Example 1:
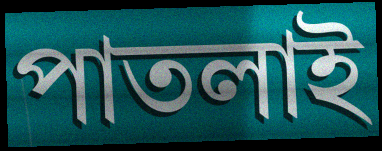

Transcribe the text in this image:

পাতলাই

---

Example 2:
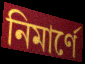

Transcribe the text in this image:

নিমার্ণে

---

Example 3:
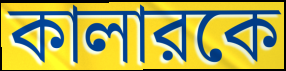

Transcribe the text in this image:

কালারকে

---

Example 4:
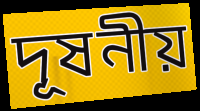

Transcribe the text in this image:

দূষনীয়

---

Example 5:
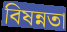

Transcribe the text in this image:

বিষন্নতা